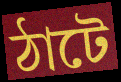
ঠাটে